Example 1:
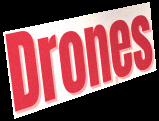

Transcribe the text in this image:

Drones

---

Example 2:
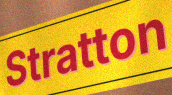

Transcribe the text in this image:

Stratton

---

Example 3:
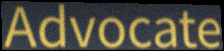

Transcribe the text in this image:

Advocate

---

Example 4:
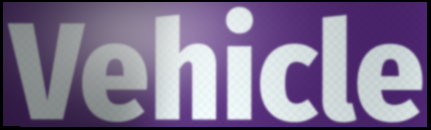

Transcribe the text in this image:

Vehicle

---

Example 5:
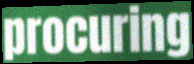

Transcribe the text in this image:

procuring